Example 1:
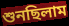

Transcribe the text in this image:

শুনছিলাম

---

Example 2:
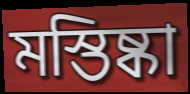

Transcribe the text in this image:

মস্তিষ্কা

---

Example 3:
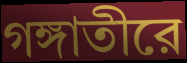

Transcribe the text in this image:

গঙ্গাতীরে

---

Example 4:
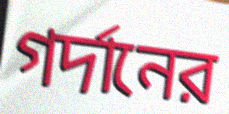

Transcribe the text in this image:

গর্দানের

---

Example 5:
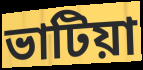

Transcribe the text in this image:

ভাটিয়া